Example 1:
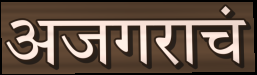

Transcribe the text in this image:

अजगराचं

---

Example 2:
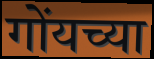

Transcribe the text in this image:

गोंयच्या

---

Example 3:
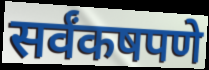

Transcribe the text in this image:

सर्वंकषपणे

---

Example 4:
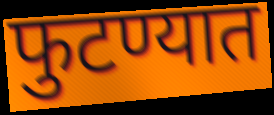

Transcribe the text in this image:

फुटण्यात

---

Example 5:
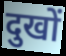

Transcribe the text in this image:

दुखों